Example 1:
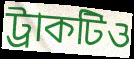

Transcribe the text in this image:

ট্রাকটিও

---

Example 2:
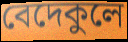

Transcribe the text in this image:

বেদেকুলে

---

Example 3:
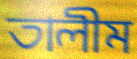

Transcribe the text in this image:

তালীম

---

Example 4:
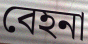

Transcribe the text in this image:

বেহনা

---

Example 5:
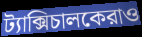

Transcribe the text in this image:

ট্যাক্সিচালকেরাও